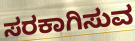
ಸರಕಾಗಿಸುವ